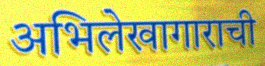
अभिलेखागाराची